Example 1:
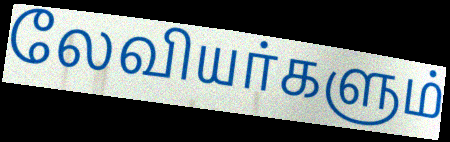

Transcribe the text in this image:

லேவியர்களும்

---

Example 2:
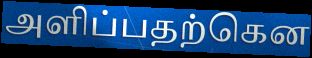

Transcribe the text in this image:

அளிப்பதற்கென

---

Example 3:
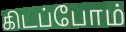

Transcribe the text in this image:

கிடப்போம்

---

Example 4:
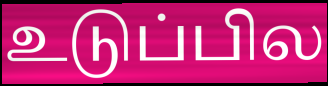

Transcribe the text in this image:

உடுப்பில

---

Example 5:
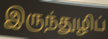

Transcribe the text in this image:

இருந்துழிப்